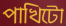
পাখিটো